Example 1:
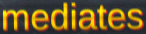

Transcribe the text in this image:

mediates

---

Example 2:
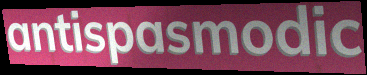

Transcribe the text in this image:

antispasmodic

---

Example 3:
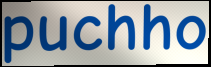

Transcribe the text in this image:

puchho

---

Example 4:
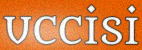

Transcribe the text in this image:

uccisi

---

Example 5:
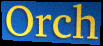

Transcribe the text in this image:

Orch